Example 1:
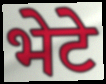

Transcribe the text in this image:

भेटे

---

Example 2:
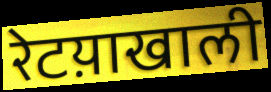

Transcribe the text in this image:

रेटय़ाखाली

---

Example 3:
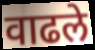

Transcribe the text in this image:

वाढले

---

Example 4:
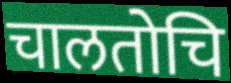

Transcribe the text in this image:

चालतोचि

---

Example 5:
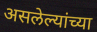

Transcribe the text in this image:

असलेल्यांच्या